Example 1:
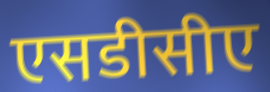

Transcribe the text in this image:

एसडीसीए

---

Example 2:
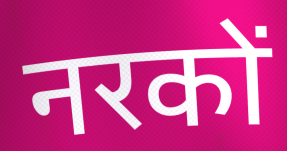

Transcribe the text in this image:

नरकों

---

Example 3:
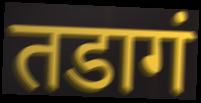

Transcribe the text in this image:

तडागं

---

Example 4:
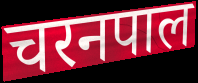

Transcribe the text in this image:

चरनपाल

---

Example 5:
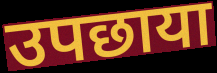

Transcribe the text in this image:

उपछाया